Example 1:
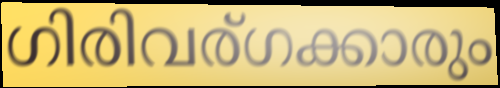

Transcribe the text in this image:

ഗിരിവര്ഗക്കാരും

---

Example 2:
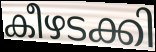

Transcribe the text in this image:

കീഴടക്കി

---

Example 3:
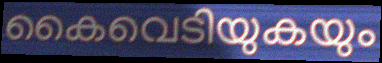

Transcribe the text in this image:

കൈവെടിയുകയും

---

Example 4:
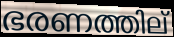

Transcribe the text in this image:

ഭരണത്തില്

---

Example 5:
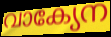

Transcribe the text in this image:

വാക്യേന